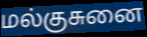
மல்குசுனை